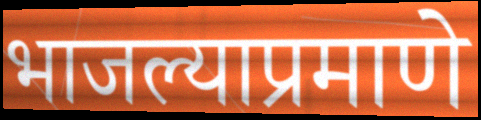
भाजल्याप्रमाणे